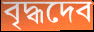
বৃদ্ধদেব